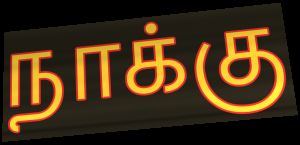
நாக்கு